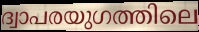
ദ്വാപരയുഗത്തിലെ